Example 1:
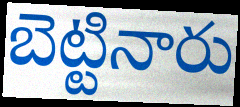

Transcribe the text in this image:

బెట్టినారు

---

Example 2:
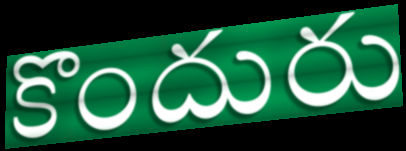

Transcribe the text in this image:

కొందురు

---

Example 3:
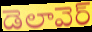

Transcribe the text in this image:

డెలావెర్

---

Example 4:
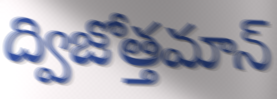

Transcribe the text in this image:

ద్విజోత్తమాన్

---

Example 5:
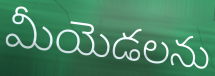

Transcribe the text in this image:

మీయెడలను